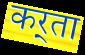
कर्ता